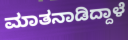
ಮಾತನಾಡಿದ್ದಾಳೆ